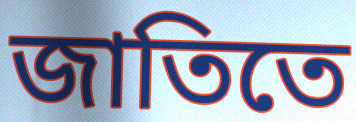
জাতিতে